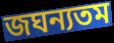
জঘন্যতম